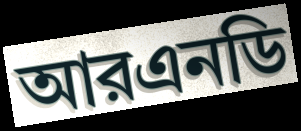
আরএনডি